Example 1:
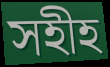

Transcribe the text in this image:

সহীহ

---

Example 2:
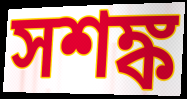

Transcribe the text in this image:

সশঙ্ক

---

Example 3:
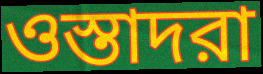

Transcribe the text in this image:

ওস্তাদরা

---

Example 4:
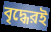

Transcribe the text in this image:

বৃদ্ধেরই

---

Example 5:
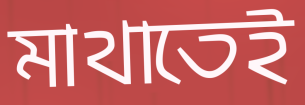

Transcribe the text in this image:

মাথাতেই